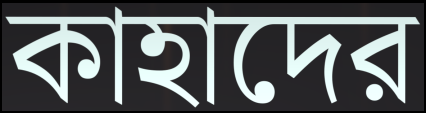
কাহাদের